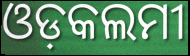
ଓଡ଼କଲମୀ